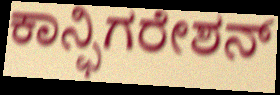
ಕಾನ್ಫಿಗರೇಶನ್